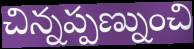
చిన్నప్పణ్నుంచి